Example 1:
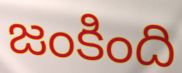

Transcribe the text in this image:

జంకింది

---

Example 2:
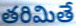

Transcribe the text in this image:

తరిమితే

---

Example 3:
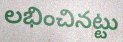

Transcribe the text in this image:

లభించినట్టు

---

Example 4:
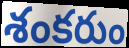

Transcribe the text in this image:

శంకరుం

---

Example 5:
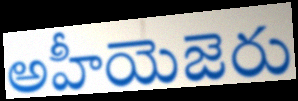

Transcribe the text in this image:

అహీయెజెరు